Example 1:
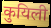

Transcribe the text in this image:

कुयिली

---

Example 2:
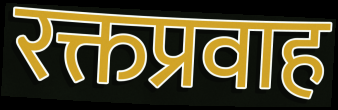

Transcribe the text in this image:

रक्तप्रवाह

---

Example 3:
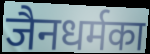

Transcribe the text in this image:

जैनधर्मका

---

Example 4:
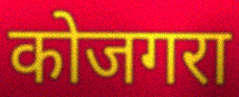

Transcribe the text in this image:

कोजगरा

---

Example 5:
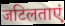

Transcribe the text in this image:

जटिलताएं